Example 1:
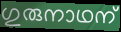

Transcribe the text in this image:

ഗുരുനാഥന്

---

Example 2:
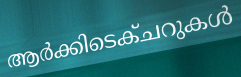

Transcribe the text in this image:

ആർക്കിടെക്ചറുകൾ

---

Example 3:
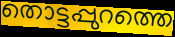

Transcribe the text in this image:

തൊട്ടപ്പുറത്തെ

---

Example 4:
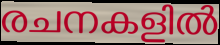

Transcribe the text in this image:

രചനകളിൽ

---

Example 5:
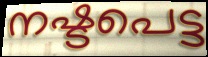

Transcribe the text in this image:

നഷ്ടപെട്ട